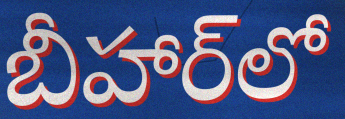
బీహార్‌లో